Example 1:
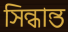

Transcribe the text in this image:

সিন্ধান্ত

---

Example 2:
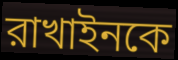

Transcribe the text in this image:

রাখাইনকে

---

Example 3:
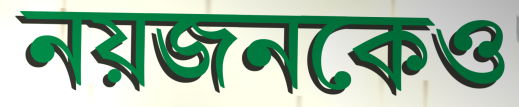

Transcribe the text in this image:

নয়জনকেও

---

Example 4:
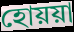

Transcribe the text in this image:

হোয়য়া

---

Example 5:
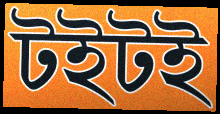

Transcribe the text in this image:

টইটই